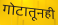
गोटातूनही